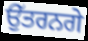
ਉੱਤਰਨਗੇ